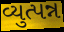
વ્યુત્પન્ન